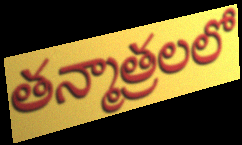
తన్మాత్రలలో